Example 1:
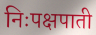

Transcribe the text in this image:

निःपक्षपाती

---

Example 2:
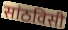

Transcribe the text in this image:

सांठविसी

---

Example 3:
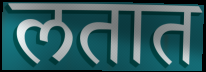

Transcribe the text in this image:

लतात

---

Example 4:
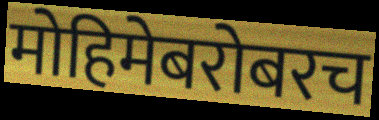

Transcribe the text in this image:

मोहिमेबरोबरच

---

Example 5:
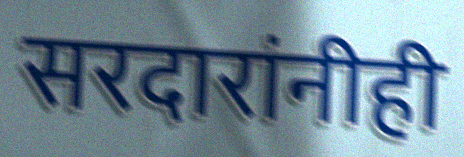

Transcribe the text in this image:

सरदारांनीही